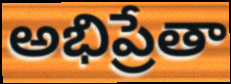
అభిప్రేతా